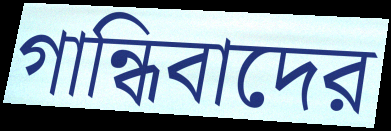
গান্ধিবাদের